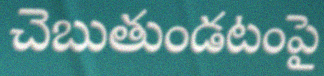
చెబుతుండటంపై